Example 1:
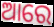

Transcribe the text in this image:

ଆରେ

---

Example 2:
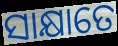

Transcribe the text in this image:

ସାକ୍ଷାତେ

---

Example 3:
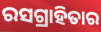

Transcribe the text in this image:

ରସଗ୍ରାହିତାର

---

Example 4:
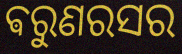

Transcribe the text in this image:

ଵରୁଣରସର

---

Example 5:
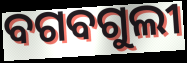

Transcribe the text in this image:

ବଗବଗୁଲୀ